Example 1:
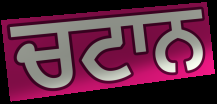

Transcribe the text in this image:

ਚਟਾਨ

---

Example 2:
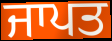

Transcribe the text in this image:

ਜਾਪਤ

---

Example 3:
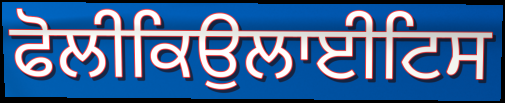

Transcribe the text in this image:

ਫੋਲੀਕਿਉਲਾਈਟਿਸ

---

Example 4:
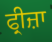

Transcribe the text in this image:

ਫ੍ਰੀਜ਼ਾ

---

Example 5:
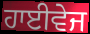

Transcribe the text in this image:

ਹਾਈਵੇਜ